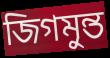
জিগমুন্ত